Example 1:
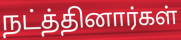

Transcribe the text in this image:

நட்த்தினார்கள்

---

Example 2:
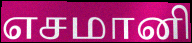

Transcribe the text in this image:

எசமானி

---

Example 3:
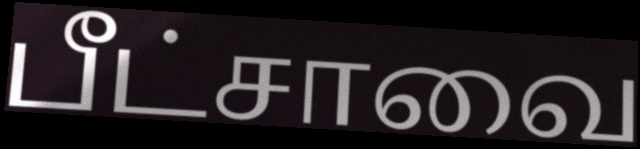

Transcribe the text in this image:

பீட்சாவை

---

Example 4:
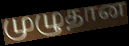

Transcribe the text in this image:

முழுதான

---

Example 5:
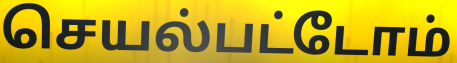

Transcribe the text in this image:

செயல்பட்டோம்